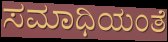
ಸಮಾಧಿಯಂತೆ